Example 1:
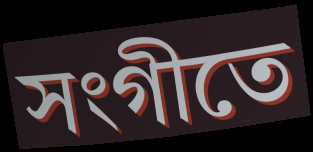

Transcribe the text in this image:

সংগীতে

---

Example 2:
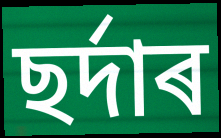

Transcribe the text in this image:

ছৰ্দাৰ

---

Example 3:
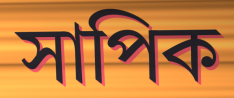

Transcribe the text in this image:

সাপিক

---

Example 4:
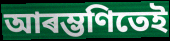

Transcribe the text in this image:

আৰম্ভণিতেই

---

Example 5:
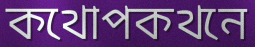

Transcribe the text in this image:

কথোপকথনে